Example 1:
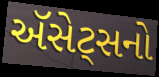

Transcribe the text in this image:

ઍસેટ્સનો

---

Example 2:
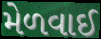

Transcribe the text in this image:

મેળવાઈ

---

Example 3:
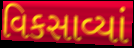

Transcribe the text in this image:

વિકસાવ્યાં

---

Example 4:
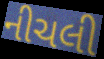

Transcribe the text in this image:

નીચલી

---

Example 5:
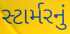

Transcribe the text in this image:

સ્ટાર્મરનું